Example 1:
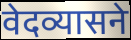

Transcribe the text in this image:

वेदव्यासने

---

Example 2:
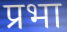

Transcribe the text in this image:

प्रभा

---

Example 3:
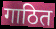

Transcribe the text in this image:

गाठित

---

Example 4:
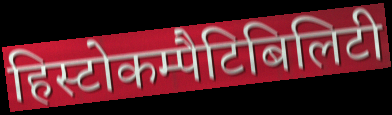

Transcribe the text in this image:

हिस्टोकम्पैटिबिलिटी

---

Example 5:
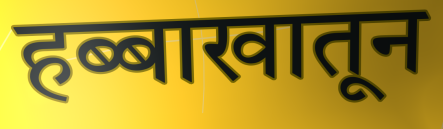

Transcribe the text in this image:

हब्बाखातून